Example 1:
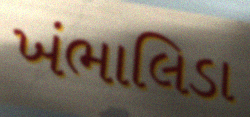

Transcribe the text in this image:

ખંભાલિડા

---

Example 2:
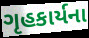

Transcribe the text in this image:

ગૃહકાર્યના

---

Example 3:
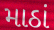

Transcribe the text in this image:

માઠાં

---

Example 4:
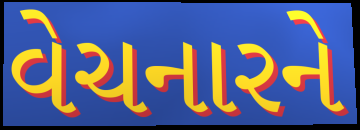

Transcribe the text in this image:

વેચનારને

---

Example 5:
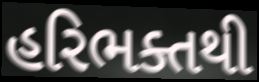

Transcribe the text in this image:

હરિભક્તથી